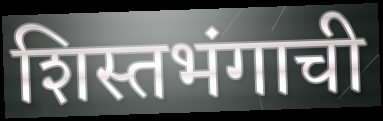
शिस्तभंगाची